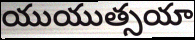
యుయుత్సయా